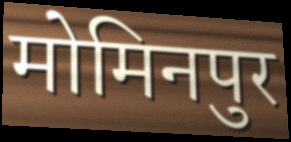
मोमिनपुर